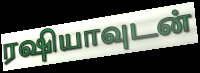
ரஷியாவுடன்